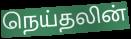
நெய்தலின்